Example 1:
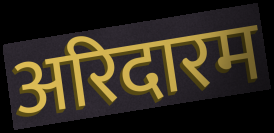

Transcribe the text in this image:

अरिदारम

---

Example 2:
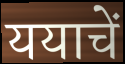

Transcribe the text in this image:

ययाचें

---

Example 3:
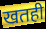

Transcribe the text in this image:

खतही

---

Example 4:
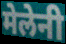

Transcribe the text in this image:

मेलेनी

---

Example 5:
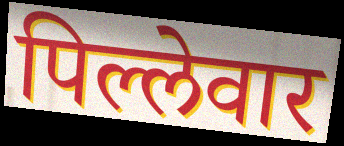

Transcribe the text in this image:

पिल्लेवार